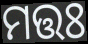
ମତ୍ତଃ